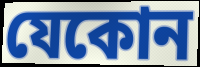
যেকোন